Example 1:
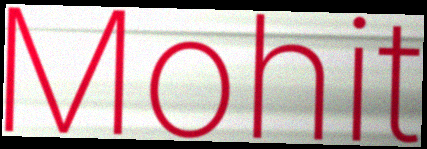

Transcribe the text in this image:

Mohit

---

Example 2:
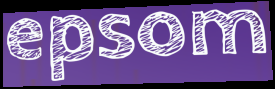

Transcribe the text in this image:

epsom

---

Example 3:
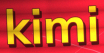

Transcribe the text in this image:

kimi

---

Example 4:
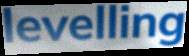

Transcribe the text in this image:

levelling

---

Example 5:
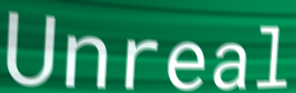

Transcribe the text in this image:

Unreal